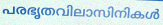
പരഭൃതവിലാസിനികൾ